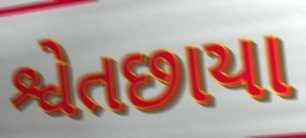
શ્વેતછાયા